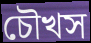
চৌখস